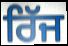
ਰਿੱਜ